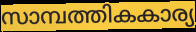
സാമ്പത്തികകാര്യ